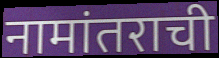
नामांतराची